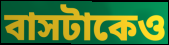
বাসটাকেও